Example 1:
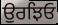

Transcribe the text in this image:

ਉਰਝਿਓ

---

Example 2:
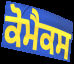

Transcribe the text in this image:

ਕੋਮੈਕਸ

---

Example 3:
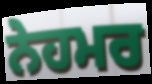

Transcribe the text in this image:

ਨੇਹਮਰ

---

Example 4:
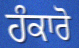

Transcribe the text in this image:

ਹੰਕਾਰੋ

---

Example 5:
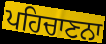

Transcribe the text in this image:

ਪਹਿਚਾਣਨਾ